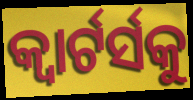
କ୍ୱାର୍ଟର୍ସକୁ